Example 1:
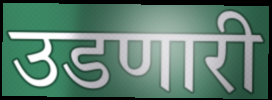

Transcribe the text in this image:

उडणारी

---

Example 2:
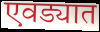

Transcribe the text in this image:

एवड्यात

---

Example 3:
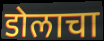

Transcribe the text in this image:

डोलाचा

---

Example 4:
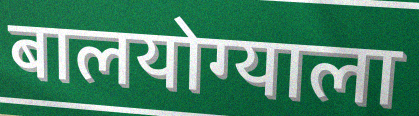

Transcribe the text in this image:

बालयोग्याला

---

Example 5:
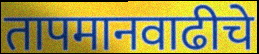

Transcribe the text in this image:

तापमानवाढीचे